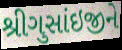
શ્રીગુસાંઇજીને